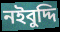
নইবুদ্দি